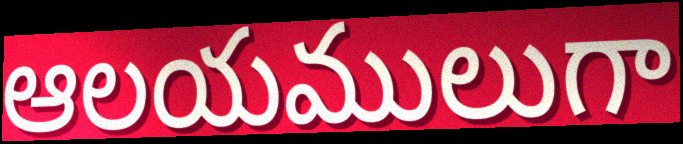
ఆలయములుగా